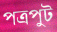
পত্রপুট